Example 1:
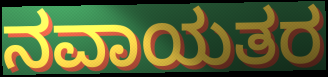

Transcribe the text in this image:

ನವಾಯತರ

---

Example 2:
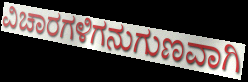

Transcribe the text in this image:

ವಿಚಾರಗಳಿಗನುಗುಣವಾಗಿ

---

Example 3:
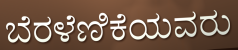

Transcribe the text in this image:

ಬೆರಳೆಣಿಕೆಯವರು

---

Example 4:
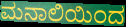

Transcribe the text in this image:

ಮನಾಲಿಯಿಂದ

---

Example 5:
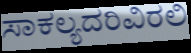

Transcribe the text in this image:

ಸಾಕಲ್ಯದರಿವಿರಲಿ